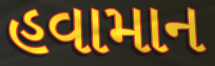
હવામાન